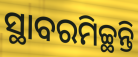
ସ୍ଥାବରମିଚ୍ଛନ୍ତି